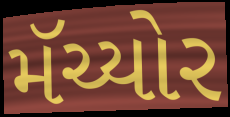
મૅચ્યોર